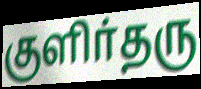
குளிர்தரு